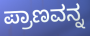
ಪ್ರಾಣವನ್ನ